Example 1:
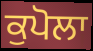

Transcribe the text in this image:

ਕੁਪੋਲਾ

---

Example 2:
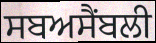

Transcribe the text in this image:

ਸਬਅਸੈਂਬਲੀ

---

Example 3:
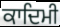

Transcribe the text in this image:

ਕਾਦਿਮੀ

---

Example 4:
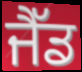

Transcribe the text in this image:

ਜੈੱਡ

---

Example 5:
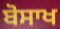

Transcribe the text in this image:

ਬੋਸਾਖ